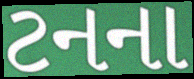
ટનના